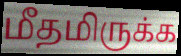
மீதமிருக்க